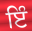
ਇੰ